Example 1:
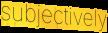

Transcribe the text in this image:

subjectively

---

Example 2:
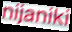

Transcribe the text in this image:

nijaniki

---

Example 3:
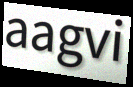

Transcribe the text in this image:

aagvi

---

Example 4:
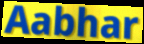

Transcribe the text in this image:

Aabhar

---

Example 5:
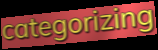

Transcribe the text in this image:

categorizing